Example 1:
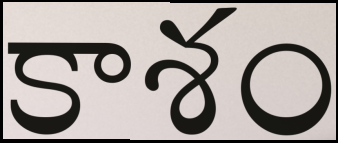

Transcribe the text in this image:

కాశం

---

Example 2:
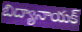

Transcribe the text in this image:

బిద్యానాయక్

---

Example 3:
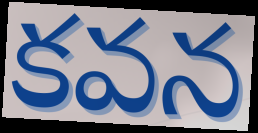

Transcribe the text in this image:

కవన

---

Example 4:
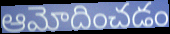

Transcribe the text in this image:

ఆమోదించడం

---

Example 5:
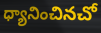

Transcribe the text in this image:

ధ్యానించినచో